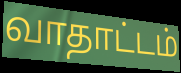
வாதாட்டம்